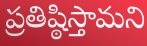
ప్రతిష్ఠిస్తామని